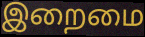
இறைமை